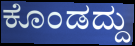
ಕೊಂಡದ್ದು